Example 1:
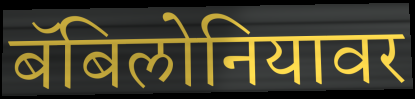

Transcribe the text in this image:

बॅबिलोनियावर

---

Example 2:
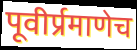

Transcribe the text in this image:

पूवीर्प्रमाणेच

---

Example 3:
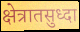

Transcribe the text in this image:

क्षेत्रातसुध्दा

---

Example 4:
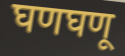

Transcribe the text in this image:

घणघणू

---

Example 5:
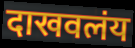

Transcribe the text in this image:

दाखवलंय